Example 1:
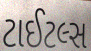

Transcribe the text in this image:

ટાઈટલ્સ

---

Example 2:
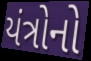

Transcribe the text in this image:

યંત્રોનો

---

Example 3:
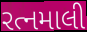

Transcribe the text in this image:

રત્નમાલી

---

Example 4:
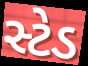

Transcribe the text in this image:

સ્ટેડ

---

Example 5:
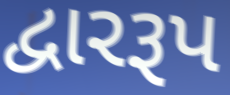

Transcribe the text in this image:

દ્વારરૂપ